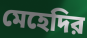
মেহেদির